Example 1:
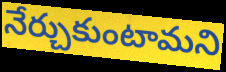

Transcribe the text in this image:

నేర్చుకుంటామని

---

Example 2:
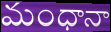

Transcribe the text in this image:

మంధానా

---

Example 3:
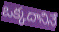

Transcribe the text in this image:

ఒక్కదానినే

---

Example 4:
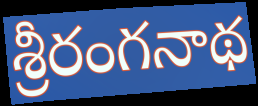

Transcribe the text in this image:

శ్రీరంగనాథ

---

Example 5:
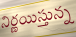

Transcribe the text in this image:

నిర్ణయిస్తున్న